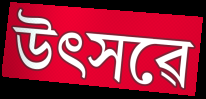
উৎসৱে